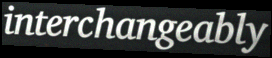
interchangeably